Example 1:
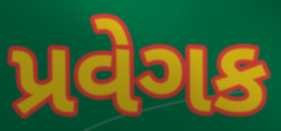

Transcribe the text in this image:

પ્રવેગક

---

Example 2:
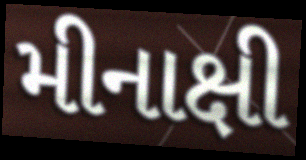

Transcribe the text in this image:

મીનાક્ષી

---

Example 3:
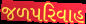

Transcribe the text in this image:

જળપરિવાહ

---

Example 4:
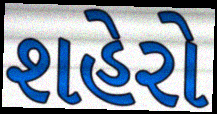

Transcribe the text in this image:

શહેરો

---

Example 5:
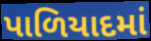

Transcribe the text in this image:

પાળિયાદમાં